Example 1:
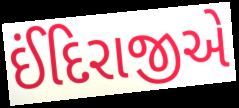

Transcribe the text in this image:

ઈંદિરાજીએ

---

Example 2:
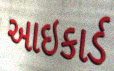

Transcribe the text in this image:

આઇકાર્ડ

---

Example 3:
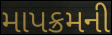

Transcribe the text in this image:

માપક્રમની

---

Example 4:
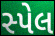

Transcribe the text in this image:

સ્પેલ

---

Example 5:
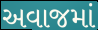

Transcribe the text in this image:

અવાજમાં